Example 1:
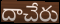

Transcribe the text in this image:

దాచేరు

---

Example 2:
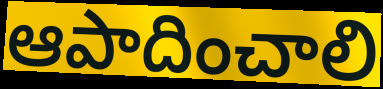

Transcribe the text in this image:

ఆపాదించాలి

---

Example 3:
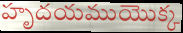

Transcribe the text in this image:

హృదయముయొక్క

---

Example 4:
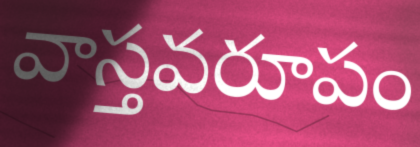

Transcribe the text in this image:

వాస్తవరూపం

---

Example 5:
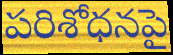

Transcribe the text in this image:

పరిశోధనపై